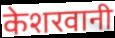
केशरवानी